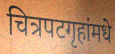
चित्रपटगृहांमधे